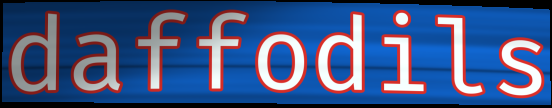
daffodils